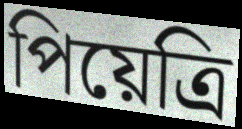
পিয়েত্রি